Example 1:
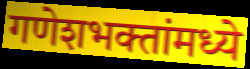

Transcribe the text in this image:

गणेशभक्तांमध्ये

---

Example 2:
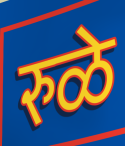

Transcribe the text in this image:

रुळे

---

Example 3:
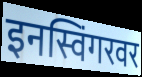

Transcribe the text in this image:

इनस्विंगरवर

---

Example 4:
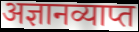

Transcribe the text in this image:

अज्ञानव्याप्त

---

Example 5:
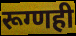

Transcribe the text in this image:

रूग्णही